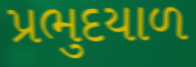
પ્રભુદયાળ